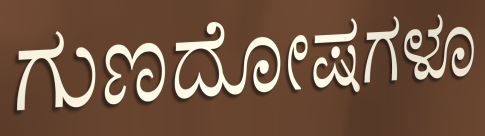
ಗುಣದೋಷಗಳೂ